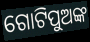
ଗୋଟିପୁଅଙ୍କ